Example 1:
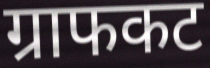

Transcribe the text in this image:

ग्राफकट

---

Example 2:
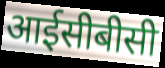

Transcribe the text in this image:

आईसीबीसी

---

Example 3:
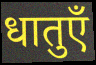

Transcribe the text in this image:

धातुएँ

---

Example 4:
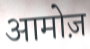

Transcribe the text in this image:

आमोज़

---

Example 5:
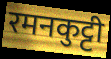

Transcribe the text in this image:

रमनकुट्टी